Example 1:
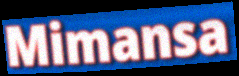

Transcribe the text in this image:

Mimansa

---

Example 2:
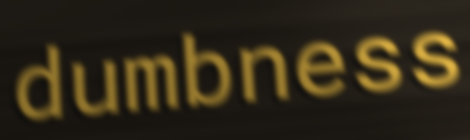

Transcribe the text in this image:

dumbness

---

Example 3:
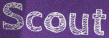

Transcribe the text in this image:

Scout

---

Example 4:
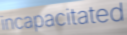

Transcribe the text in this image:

incapacitated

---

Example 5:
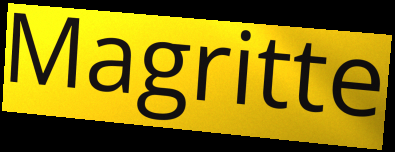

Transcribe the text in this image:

Magritte